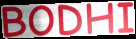
BODHI